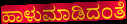
ಹಾಳುಮಾಡಿದಂತೆ